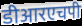
डीआरएचपी